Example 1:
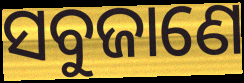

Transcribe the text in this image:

ସବୁଜାଣେ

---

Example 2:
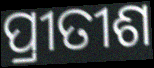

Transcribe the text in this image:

ପ୍ରୀତୀଶ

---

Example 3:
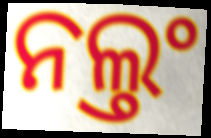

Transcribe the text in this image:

ନଲ୍ତଂ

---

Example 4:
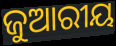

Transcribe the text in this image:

ଜୁଆରୀୟ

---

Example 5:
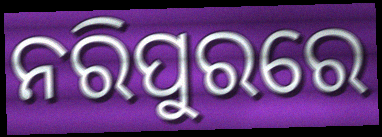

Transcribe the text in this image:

ନରିପୁରରେ